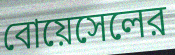
বোয়েসেলের